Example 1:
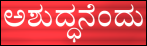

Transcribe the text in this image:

ಅಶುದ್ಧನೆಂದು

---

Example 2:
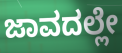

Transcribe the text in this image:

ಜಾವದಲ್ಲೇ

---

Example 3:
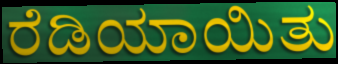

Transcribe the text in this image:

ರೆಡಿಯಾಯಿತು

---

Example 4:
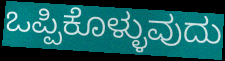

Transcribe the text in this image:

ಒಪ್ಪಿಕೊಳ್ಳುವುದು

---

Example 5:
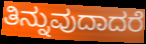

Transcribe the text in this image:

ತಿನ್ನುವುದಾದರೆ